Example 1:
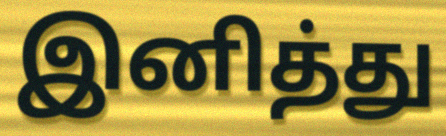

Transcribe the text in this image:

இனித்து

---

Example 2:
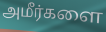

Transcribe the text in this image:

அமீர்களை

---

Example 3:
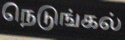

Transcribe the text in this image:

நெடுங்கல்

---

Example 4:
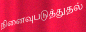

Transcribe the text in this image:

நினைவுபடுத்துதல்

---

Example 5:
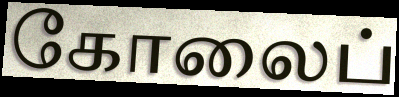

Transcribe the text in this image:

கோலைப்